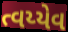
ત્વય્યેવ